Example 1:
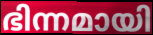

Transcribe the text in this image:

ഭിന്നമായി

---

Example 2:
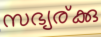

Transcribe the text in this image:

സഭ്യര്ക്കു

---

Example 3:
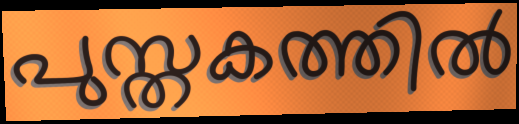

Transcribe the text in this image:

പുസ്തകത്തിൽ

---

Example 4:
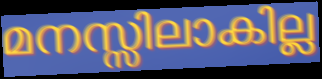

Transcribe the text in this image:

മനസ്സിലാകില്ല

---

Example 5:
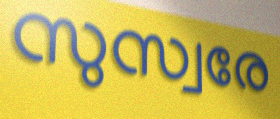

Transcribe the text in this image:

സുസ്വരേ